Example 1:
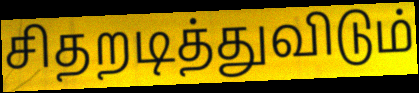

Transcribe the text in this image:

சிதறடித்துவிடும்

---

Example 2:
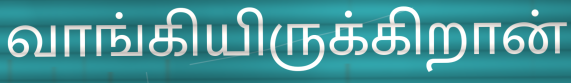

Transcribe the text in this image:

வாங்கியிருக்கிறான்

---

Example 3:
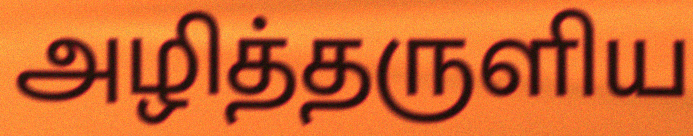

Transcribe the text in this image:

அழித்தருளிய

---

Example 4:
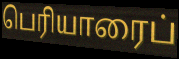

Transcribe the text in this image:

பெரியாரைப்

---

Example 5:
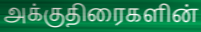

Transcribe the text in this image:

அக்குதிரைகளின்